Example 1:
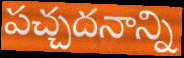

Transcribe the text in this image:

పచ్చదనాన్ని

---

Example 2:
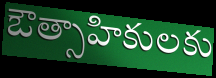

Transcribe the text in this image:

ఔత్సాహికులకు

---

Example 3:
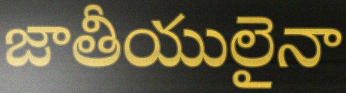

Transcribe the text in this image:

జాతీయులైనా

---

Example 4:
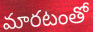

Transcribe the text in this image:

మారటంతో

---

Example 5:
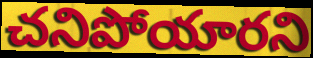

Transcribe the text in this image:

చనిపోయారని